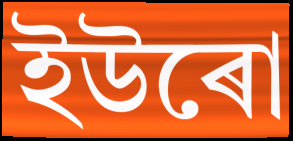
ইউৰো